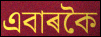
এবাৰকৈ